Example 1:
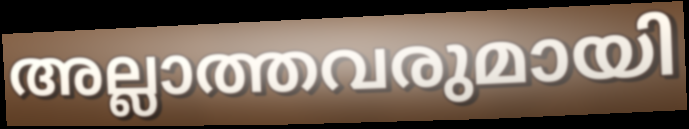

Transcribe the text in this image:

അല്ലാത്തവരുമായി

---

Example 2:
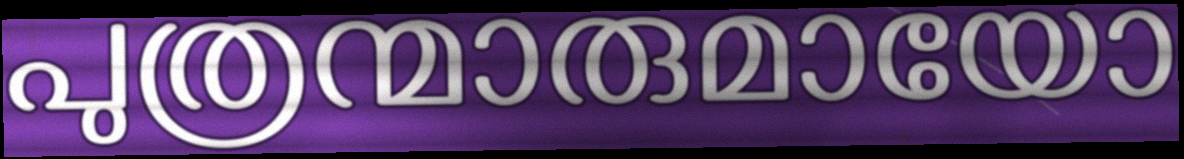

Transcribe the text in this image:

പുത്രന്മാരുമായോ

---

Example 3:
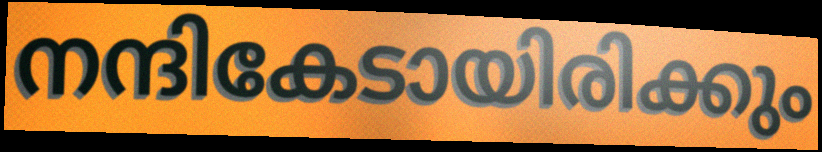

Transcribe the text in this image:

നന്ദികേടായിരിക്കും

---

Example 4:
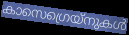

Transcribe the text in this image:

കാസെഗ്രെയ്നുകൾ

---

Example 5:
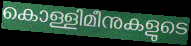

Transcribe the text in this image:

കൊള്ളിമീനുകളുടെ